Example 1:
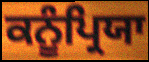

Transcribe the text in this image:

ਕਨੂੰਪ੍ਰਿਯਾ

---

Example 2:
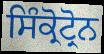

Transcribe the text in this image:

ਸਿੰਕ੍ਰੋਟ੍ਰੋਨ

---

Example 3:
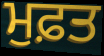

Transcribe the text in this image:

ਮੁਫ਼ਤ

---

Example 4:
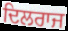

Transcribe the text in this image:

ਦਿਲਰਾਜ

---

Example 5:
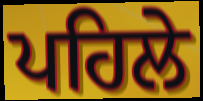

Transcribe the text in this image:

ਪਹਿਲੇ